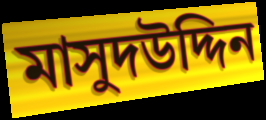
মাসুদউদ্দিন